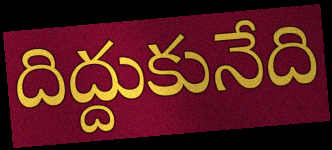
దిద్దుకునేది